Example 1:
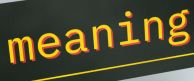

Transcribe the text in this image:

meaning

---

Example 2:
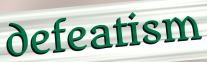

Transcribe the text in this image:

defeatism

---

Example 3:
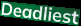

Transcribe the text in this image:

Deadliest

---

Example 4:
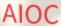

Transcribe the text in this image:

AIOC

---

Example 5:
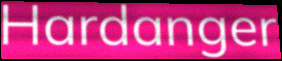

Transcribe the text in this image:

Hardanger